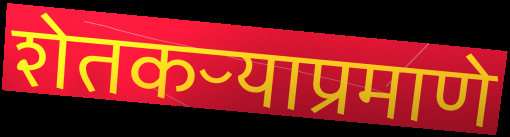
शेतकऱ्याप्रमाणे